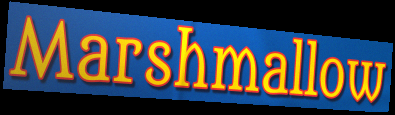
Marshmallow